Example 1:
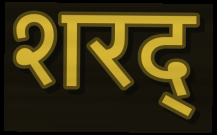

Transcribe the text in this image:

शरद्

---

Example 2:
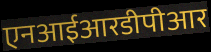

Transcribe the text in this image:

एनआईआरडीपीआर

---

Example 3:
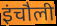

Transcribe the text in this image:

इंचौली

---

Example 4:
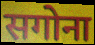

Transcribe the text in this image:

सगोना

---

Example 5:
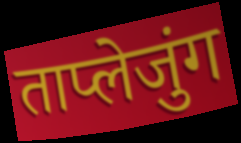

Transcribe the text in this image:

ताप्लेजुंग